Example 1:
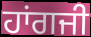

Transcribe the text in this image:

ਹਾਂਗਜੀ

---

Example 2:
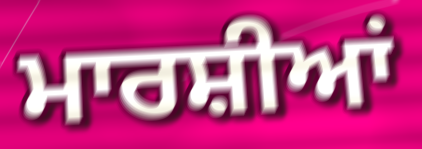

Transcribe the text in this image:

ਮਾਰਸ਼ੀਆਂ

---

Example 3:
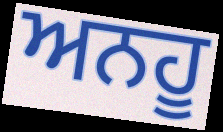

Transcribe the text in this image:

ਅਨਹੂ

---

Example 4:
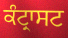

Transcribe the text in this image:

ਕੰਟ੍ਰਾਸਟ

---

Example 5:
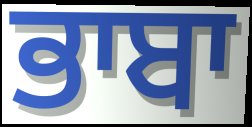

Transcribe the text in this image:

ਭਾਬਾ